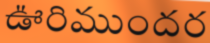
ఊరిముందర